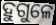
ହୁଗୁଳେ